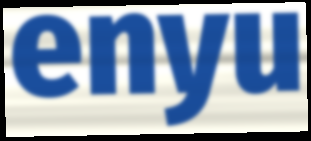
enyu